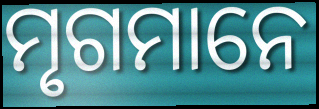
ମୃଗମାନେ